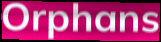
Orphans